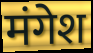
मंगेश